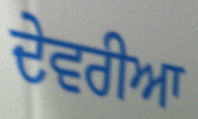
ਦੇਵਰੀਆ